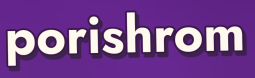
porishrom